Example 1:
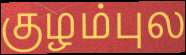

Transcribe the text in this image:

குழம்புல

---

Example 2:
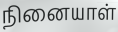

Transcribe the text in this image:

நினையாள்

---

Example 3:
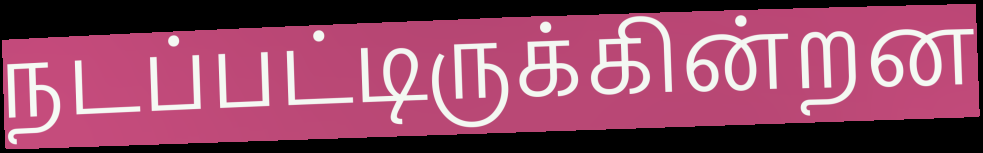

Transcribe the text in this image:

நடப்பட்டிருக்கின்றன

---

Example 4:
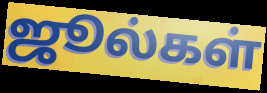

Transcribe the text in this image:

ஜூல்கள்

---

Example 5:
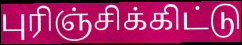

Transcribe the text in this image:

புரிஞ்சிக்கிட்டு